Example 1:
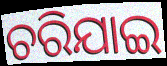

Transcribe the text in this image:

ଚରିଯାଇ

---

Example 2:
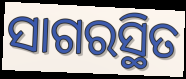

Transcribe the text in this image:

ସାଗରସ୍ଥିତ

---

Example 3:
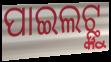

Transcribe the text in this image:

ପାଇଲଟ୍ଙ୍କୁ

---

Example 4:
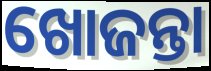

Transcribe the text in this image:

ଖୋଜନ୍ତା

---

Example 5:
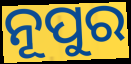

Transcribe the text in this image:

ନୂପୁର